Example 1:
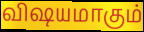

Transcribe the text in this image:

விஷயமாகும்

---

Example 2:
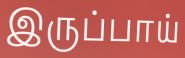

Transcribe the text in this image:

இருப்பாய்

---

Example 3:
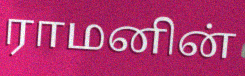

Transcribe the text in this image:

ராமனின்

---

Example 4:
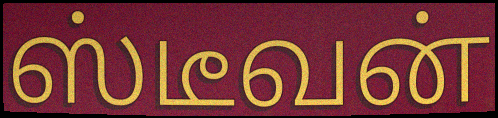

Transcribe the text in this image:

ஸ்டீவன்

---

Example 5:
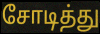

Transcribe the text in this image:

சோடித்து